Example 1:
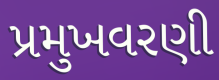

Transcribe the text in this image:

પ્રમુખવરણી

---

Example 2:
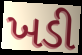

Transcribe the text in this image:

ખડી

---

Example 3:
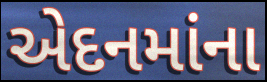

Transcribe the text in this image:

એદનમાંના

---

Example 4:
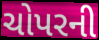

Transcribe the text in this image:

ચોપરની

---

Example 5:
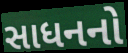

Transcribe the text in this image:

સાધનનો